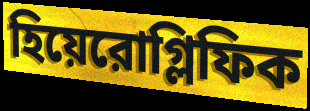
হিয়েরোগ্লিফিক